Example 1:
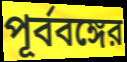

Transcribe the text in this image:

পূর্ববঙ্গের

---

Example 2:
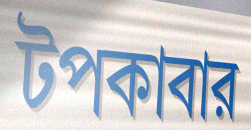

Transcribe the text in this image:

টপকাবার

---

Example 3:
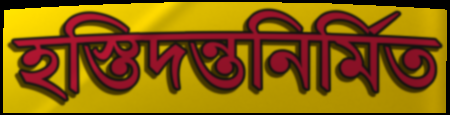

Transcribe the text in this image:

হস্তিদন্তনির্মিত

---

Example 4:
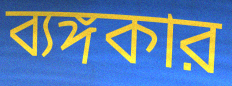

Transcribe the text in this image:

ব্যঙ্গকার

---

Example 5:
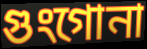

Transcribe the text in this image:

গুংগোনা